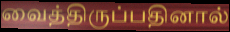
வைத்திருப்பதினால்